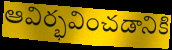
ఆవిర్భవించడానికి